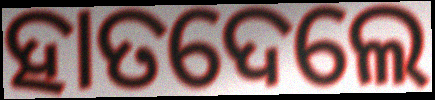
ହାତଦେଲେ